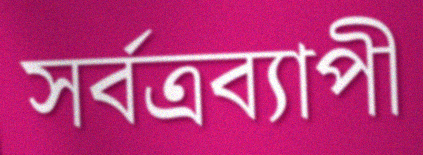
সর্বত্রব্যাপী